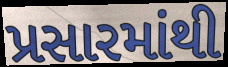
પ્રસારમાંથી